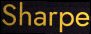
Sharpe